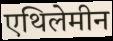
एथिलेमीन